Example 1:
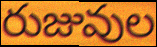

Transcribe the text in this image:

రుజువుల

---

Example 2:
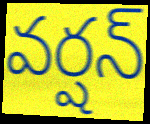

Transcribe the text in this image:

వర్షన్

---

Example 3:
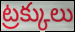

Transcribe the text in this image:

ట్రక్కులు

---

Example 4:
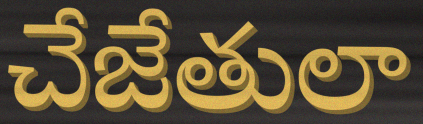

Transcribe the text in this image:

చేజేతులా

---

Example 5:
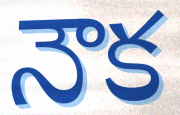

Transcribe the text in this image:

నౌక